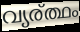
വ്യര്ത്ഥം